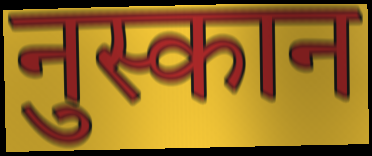
नुस्कान